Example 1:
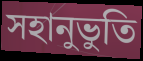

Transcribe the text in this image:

সহানুভুতি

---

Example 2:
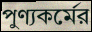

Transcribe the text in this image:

পুণ্যকর্মের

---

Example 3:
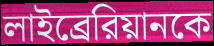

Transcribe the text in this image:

লাইব্রেরিয়ানকে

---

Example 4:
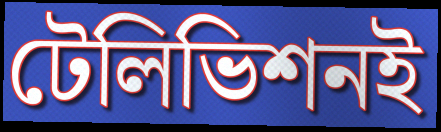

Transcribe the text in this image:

টেলিভিশনই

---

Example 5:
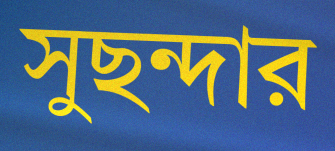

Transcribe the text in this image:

সুছন্দার